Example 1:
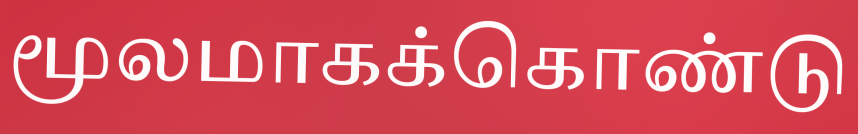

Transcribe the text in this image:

மூலமாகக்கொண்டு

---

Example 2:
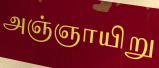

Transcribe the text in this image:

அஞ்ஞாயிறு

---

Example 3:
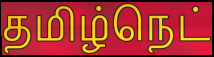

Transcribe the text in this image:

தமிழ்நெட்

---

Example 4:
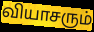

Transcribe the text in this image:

வியாசரும்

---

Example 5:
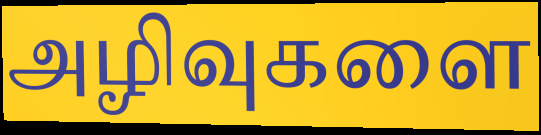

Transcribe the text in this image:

அழிவுகளை